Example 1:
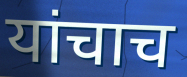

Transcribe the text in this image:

यांचाच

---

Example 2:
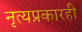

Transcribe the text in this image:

नृत्यप्रकारही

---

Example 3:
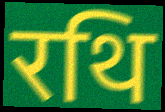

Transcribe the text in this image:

रथि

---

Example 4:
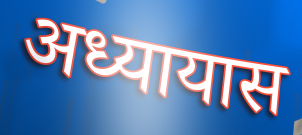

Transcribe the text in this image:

अध्यायास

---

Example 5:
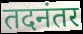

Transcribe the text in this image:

तदनंतर